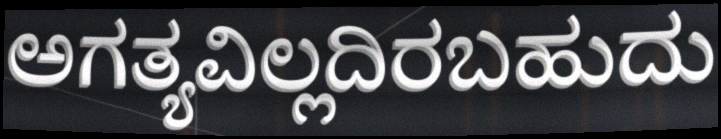
ಅಗತ್ಯವಿಲ್ಲದಿರಬಹುದು